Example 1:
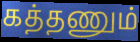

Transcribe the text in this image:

கத்தணும்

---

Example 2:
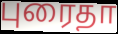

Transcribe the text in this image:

புரைதா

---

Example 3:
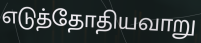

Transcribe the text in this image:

எடுத்தோதியவாறு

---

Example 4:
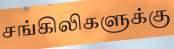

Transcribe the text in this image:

சங்கிலிகளுக்கு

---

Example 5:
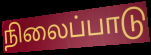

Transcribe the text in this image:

நிலைப்பாடு